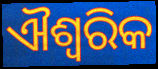
ଐଶ୍ୱରିକ